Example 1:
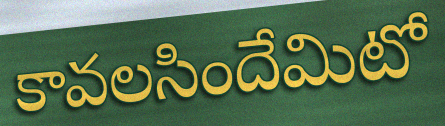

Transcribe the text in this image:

కావలసిందేమిటో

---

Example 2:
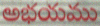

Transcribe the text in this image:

అభయము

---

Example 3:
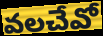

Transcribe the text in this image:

వలచేవో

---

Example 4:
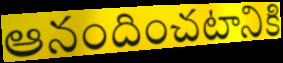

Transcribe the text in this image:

ఆనందించటానికి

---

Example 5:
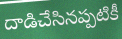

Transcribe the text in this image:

దాడిచేసినప్పటికీ